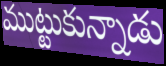
ముట్టుకున్నాడు